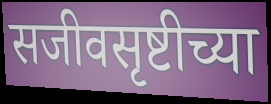
सजीवसृष्टीच्या